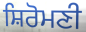
ਸ਼ਿਰੋਮਣੀ